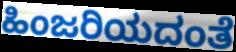
ಹಿಂಜರಿಯದಂತೆ